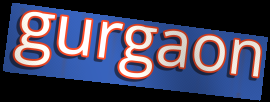
gurgaon